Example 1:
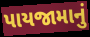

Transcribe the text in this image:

પાયજામાનું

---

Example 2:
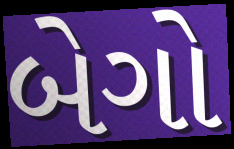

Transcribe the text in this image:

બેગો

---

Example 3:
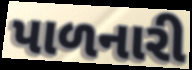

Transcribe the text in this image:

પાળનારી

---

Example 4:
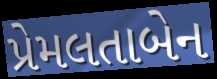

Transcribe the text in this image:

પ્રેમલતાબેન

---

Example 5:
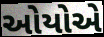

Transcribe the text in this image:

ઓયોએ